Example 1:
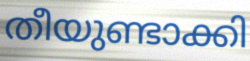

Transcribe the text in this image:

തീയുണ്ടാക്കി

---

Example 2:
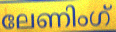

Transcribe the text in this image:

ലേണിംഗ്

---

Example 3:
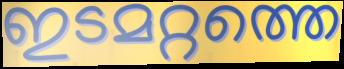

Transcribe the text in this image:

ഇടമറ്റത്തെ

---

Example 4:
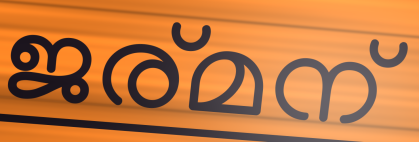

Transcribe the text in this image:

ജര്മന്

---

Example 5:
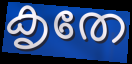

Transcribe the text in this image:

കൃതേ